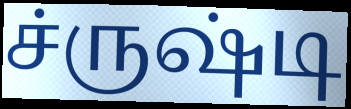
ச்ருஷ்டி